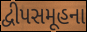
દ્વીપસમૂહના